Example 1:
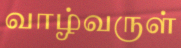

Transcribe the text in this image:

வாழ்வருள்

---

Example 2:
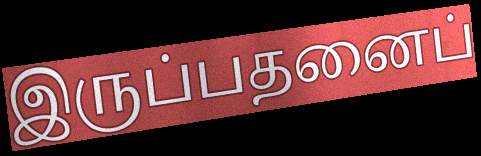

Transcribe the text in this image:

இருப்பதனைப்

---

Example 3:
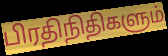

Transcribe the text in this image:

பிரதிநிதிகளும்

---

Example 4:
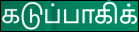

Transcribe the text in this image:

கடுப்பாகிக்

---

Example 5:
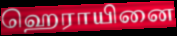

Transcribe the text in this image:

ஹெராயினை